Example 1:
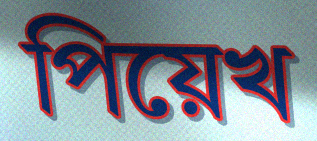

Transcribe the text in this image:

পিয়েখ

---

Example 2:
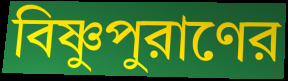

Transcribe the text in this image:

বিষ্ণুপুরাণের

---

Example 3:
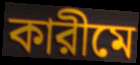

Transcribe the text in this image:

কারীমে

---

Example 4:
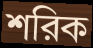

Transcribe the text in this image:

শরিক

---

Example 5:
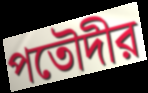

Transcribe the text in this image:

পতৌদীর